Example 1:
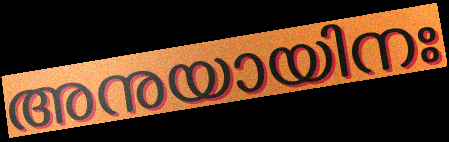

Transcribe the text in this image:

അനുയായിനഃ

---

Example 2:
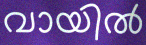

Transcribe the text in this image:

വായിൽ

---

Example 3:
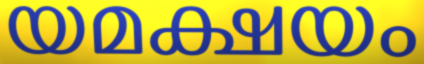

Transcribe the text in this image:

യമക്ഷയം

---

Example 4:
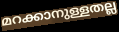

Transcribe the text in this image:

മറക്കാനുള്ളതല്ല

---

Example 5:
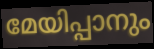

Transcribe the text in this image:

മേയിപ്പാനും